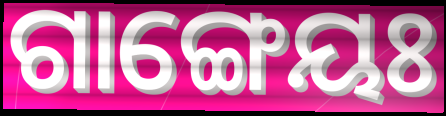
ଗାଙ୍ଗେୟଃ